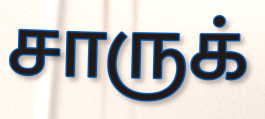
சாருக்